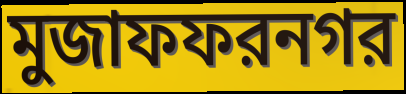
মুজাফফরনগর